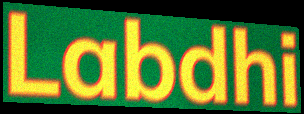
Labdhi